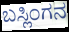
ಬಸ್ಲಿಂಗನ